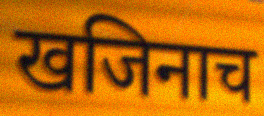
खजिनाच